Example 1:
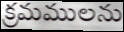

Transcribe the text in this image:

క్రమములను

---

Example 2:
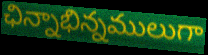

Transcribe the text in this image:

ఛిన్నాభిన్నములుగా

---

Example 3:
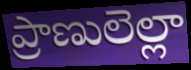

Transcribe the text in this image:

ప్రాణులెల్లా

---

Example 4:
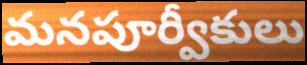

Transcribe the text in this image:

మనపూర్వీకులు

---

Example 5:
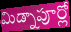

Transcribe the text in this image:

మిడ్నాపూర్లో